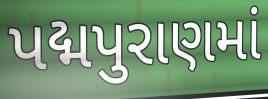
પદ્મપુરાણમાં